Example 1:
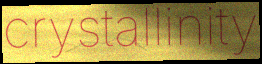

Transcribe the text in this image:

crystallinity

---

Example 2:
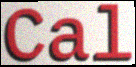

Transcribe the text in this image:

Cal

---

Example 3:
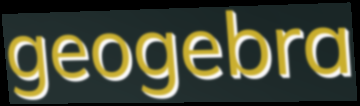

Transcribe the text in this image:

geogebra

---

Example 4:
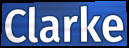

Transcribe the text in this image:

Clarke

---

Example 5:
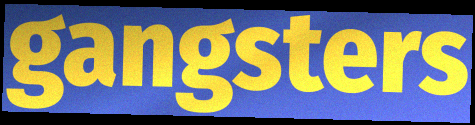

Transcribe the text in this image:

gangsters